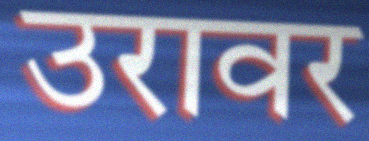
उरावर